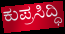
ಕುಪ್ರಸಿದ್ಧಿ